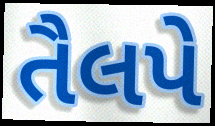
તૈલપે